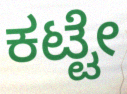
ಕಟ್ಟೇ